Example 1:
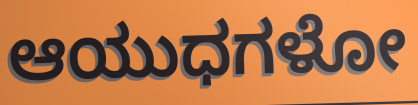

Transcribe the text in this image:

ಆಯುಧಗಳೋ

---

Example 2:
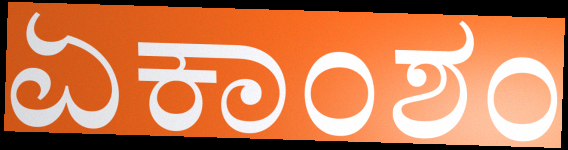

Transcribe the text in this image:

ಏಕಾಂಶಂ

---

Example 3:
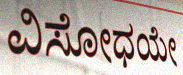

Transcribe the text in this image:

ವಿಸೋಧಯೇ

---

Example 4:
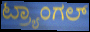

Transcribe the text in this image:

ಟ್ರ್ಯಾಂಗಲ್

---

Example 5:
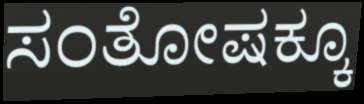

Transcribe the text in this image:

ಸಂತೋಷಕ್ಕೂ